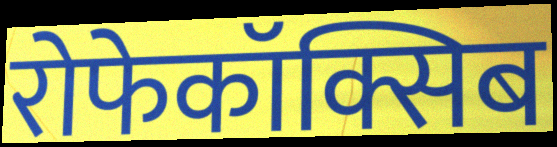
रोफेकॉक्सिब